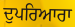
ਦੁਪਰਿਆਰਾ